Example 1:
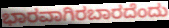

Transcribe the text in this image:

ಭಾರವಾಗಿರಬಾರದೆಂದು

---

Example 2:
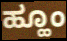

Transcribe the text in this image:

ಹ್ಹೂಂ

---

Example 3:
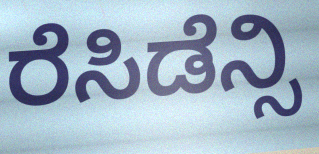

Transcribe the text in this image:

ರೆಸಿಡೆನ್ಸಿ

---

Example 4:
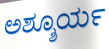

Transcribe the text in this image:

ಅಶ್ಶೂರ್ಯ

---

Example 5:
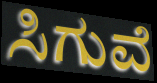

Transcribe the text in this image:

ಸಿಗುವೆ